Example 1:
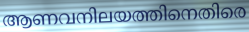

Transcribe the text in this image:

ആണവനിലയത്തിനെതിരെ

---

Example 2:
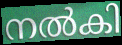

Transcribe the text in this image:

നൽകി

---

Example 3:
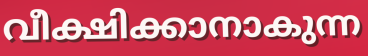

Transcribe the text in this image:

വീക്ഷിക്കാനാകുന്ന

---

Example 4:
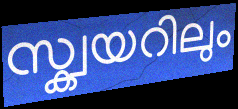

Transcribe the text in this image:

സ്ക്വയറിലും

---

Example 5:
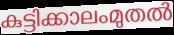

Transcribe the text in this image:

കുട്ടിക്കാലംമുതൽ